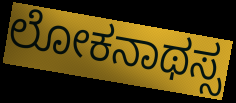
ಲೋಕನಾಥಸ್ಸ